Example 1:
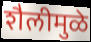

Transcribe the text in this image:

शैलीमुळे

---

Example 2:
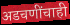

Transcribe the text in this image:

अडचणींचाही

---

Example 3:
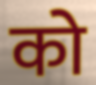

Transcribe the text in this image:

को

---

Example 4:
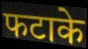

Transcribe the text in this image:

फटाके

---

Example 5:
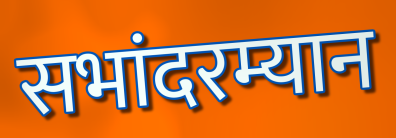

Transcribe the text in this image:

सभांदरम्यान